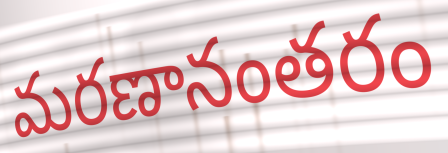
మరణానంతరం